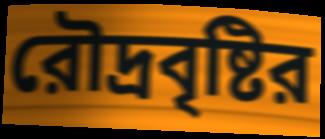
রৌদ্রবৃষ্টির